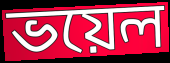
ভয়েল